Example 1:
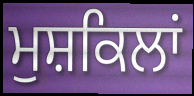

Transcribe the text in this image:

ਮੁਸ਼ਕਿਲਾਂ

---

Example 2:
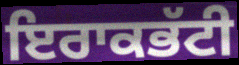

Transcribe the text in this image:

ਇਰਾਕਭੱਟੀ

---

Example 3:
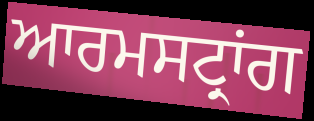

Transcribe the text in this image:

ਆਰਮਸਟ੍ਰਾਂਗ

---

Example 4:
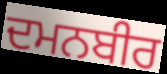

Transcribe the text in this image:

ਦਮਨਬੀਰ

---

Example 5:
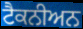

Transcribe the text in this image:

ਟੈਕਨੀਅਨ